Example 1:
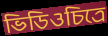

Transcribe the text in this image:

ভিডিওচিত্রে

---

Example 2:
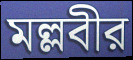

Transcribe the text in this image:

মল্লবীর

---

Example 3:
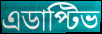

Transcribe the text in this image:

এডাপ্টিভ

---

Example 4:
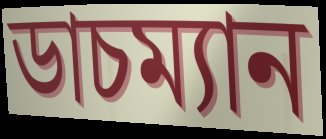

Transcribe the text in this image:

ডাচম্যান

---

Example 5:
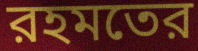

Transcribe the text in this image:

রহমতের